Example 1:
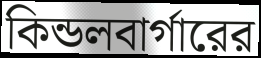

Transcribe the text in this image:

কিন্ডলবার্গারের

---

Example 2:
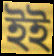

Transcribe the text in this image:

ইই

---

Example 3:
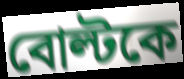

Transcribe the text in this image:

বোল্টকে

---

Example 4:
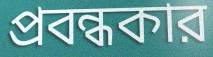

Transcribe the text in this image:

প্রবন্ধকার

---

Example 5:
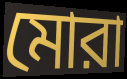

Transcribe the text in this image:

মোরা